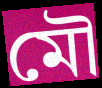
মৌ